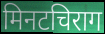
मिनटचिराग